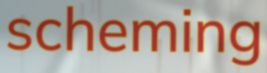
scheming